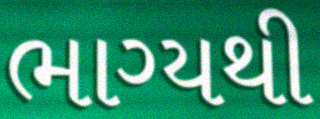
ભાગ્યથી